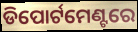
ଡିପୋର୍ଟମେଣ୍ଟରେ